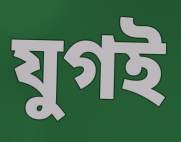
যুগই